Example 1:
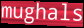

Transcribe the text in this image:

mughals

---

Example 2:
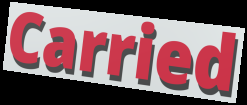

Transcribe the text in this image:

Carried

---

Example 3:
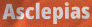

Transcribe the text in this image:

Asclepias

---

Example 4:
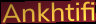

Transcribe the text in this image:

Ankhtifi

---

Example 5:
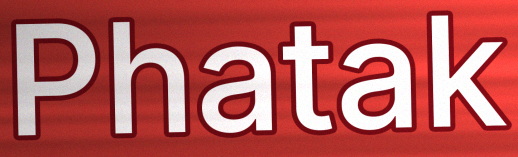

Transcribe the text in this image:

Phatak